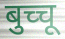
बुच्चू